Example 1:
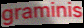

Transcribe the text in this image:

graminis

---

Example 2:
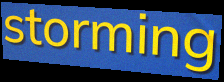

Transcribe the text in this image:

storming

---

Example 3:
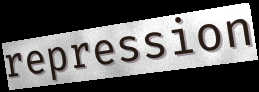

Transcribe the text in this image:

repression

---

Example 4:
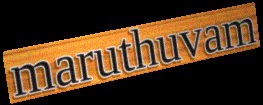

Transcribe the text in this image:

maruthuvam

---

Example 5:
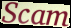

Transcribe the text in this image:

Scam